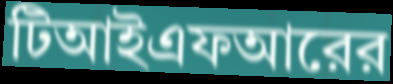
টিআইএফআরের